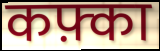
कफ़्का